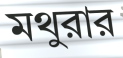
মথুরার